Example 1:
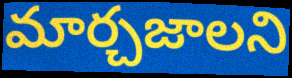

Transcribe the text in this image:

మార్చజాలని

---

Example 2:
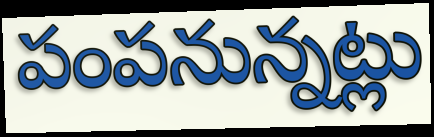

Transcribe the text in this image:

పంపనున్నట్లు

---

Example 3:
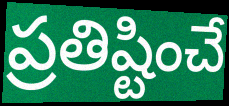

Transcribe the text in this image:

ప్రతిష్టించే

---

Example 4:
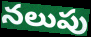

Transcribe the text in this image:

నలుపు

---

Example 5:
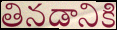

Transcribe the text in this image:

తినడానికి